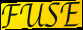
FUSE